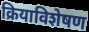
क्रियाविशेषण